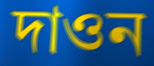
দাওন